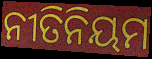
ନୀତିନିୟମ